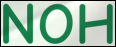
NOH